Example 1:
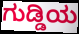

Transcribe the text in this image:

ಗುಡ್ಡಿಯ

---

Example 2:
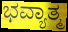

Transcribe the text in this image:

ಭವ್ಯಾತ್ಮ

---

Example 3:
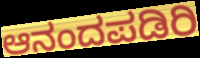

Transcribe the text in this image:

ಆನಂದಪಡಿರಿ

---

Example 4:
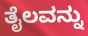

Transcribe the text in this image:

ತೈಲವನ್ನು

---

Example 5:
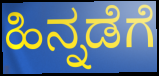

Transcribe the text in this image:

ಹಿನ್ನಡೆಗೆ